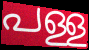
പള്ള